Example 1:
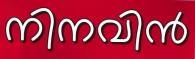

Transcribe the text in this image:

നിനവിൻ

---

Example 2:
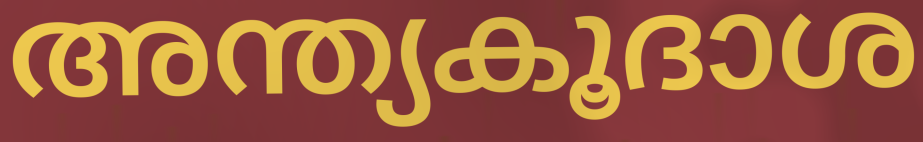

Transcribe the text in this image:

അന്ത്യകൂദാശ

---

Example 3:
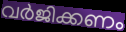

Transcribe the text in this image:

വർജിക്കണം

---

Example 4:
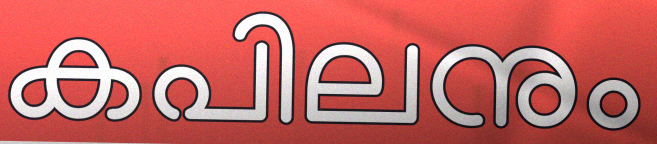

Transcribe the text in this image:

കപിലനും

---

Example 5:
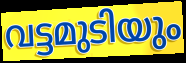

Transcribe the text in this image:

വട്ടമുടിയും